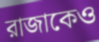
রাজাকেও